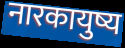
नारकायुष्य